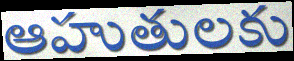
ఆహుతులకు